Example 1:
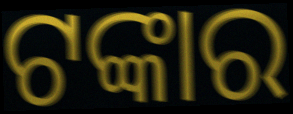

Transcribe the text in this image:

ଟଙ୍କାର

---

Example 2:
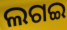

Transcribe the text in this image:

ଲଗଇ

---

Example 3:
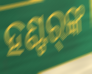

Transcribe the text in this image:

ହଣ୍ଟର୍‌ଙ୍କ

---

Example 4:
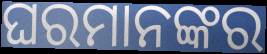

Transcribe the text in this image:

ଘରମାନଙ୍କର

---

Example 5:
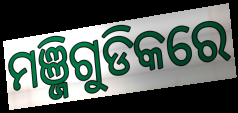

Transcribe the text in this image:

ମଞ୍ଜିଗୁଡିକରେ